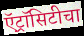
ऍट्रॉसिटीचा